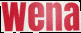
wena